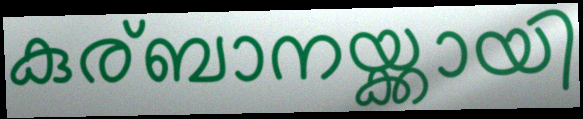
കുര്ബാനയ്ക്കായി